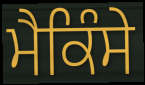
ਮੈਕਿੰਸੇ